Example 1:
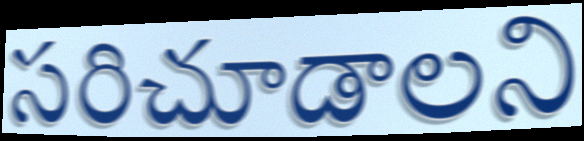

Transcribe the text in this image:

సరిచూడాలని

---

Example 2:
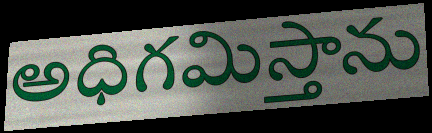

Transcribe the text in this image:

అధిగమిస్తాను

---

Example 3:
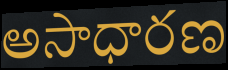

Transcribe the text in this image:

అసాధారణ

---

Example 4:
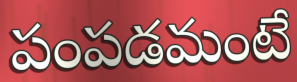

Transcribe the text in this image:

పంపడమంటే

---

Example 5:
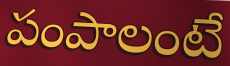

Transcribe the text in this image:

పంపాలంటే